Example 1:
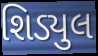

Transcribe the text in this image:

શિડ્યુલ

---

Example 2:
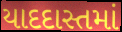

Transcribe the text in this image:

યાદદાસ્તમાં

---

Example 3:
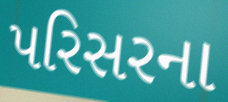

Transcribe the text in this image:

પરિસરના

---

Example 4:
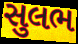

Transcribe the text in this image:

સુલભ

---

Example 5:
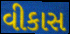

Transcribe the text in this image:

વીકાસ